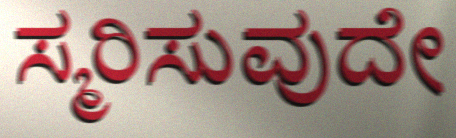
ಸ್ಮರಿಸುವುದೇ